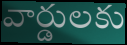
వార్డులకు